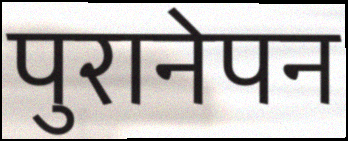
पुरानेपन